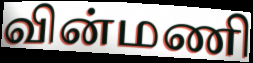
வின்மணி